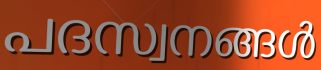
പദസ്വനങ്ങൾ